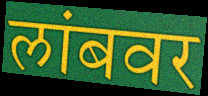
लांबवर